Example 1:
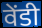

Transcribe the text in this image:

वेंडी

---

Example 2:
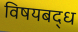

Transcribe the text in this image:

विषयबद्ध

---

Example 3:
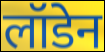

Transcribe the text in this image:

लॉडेन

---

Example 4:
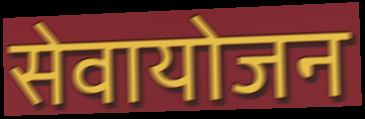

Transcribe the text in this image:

सेवायोजन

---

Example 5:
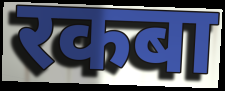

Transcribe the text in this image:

रकबा